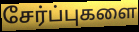
சேர்ப்புகளை